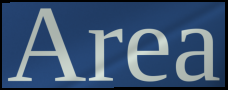
Area